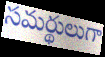
సమర్థులుగా